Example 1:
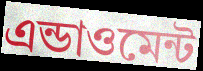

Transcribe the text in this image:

এন্ডাওমেন্ট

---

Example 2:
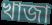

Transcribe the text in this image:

খাজা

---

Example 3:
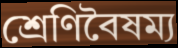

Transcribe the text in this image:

শ্রেণিবৈষম্য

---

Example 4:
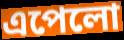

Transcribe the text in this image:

এপেলো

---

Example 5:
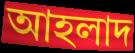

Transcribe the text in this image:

আহলাদ